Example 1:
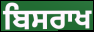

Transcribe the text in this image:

ਬਿਸਰਾਖ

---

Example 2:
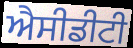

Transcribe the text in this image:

ਐਸੀਡੀਟੀ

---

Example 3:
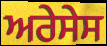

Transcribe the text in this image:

ਅਰੇਸੇਸ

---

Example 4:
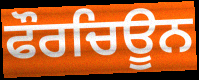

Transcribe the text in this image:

ਫੌਰਚਿਊਨ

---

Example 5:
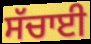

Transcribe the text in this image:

ਸੱਚਾਈ